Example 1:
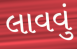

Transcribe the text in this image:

લાવવું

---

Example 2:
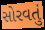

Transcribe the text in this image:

સોરવતું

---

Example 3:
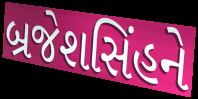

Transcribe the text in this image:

બ્રજેશસિંહને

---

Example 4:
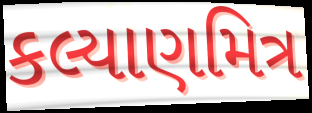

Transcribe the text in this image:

કલ્યાણમિત્ર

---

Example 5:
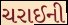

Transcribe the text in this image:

ચરાઈની